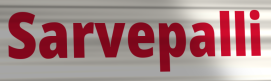
Sarvepalli